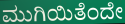
ಮುಗಿಯಿತೆಂದೇ